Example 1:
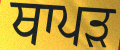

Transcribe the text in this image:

ਥਾਪੜ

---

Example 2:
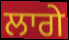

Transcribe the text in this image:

ਲਾਗੇ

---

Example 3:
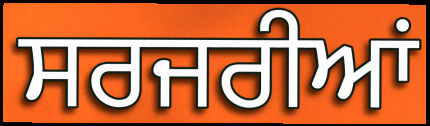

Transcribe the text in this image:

ਸਰਜਰੀਆਂ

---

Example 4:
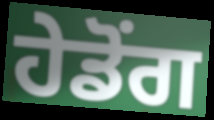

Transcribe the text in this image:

ਹੇਡੋਂਗ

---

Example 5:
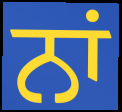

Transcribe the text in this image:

ਨਾਂ